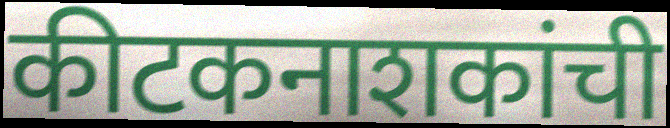
कीटकनाशकांची